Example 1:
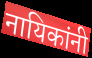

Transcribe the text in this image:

नायिकांनी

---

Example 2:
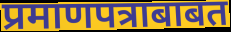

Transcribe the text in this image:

प्रमाणपत्राबाबत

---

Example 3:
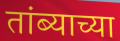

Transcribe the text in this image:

तांब्याच्या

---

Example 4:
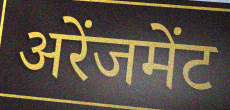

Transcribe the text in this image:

अरेंजमेंट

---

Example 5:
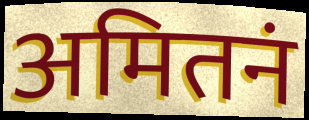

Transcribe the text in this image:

अमितनं